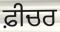
ਫ਼ੀਚਰ